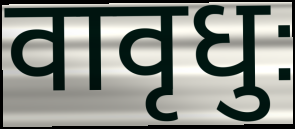
वावृधुः